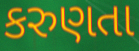
કરુણતા